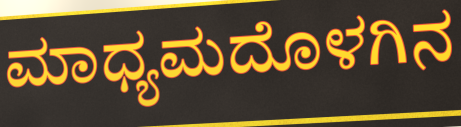
ಮಾಧ್ಯಮದೊಳಗಿನ